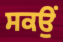
ਸਕਉਂ